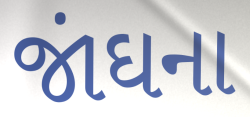
જાંઘના